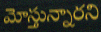
మోస్తున్నారని